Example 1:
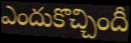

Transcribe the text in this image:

ఎందుకొచ్చిందీ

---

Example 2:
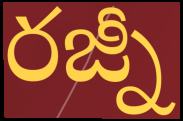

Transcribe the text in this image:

రజ్నీ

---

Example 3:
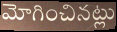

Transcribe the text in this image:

మోగించినట్లు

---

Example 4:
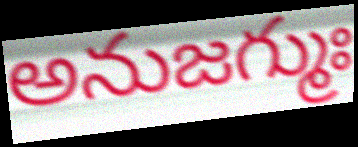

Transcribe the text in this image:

అనుజగ్ముః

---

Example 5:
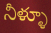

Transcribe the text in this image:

నీళ్ళూ